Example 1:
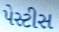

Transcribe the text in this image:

પેસ્ટીસ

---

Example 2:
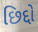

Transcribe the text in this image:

છિદ્દો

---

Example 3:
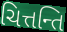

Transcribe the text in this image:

ચિત્તન્તિ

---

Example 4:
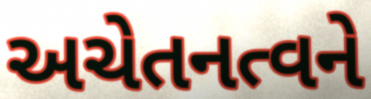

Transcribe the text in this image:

અચેતનત્વને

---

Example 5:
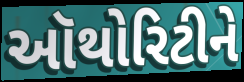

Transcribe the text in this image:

ઑથોરિટીને